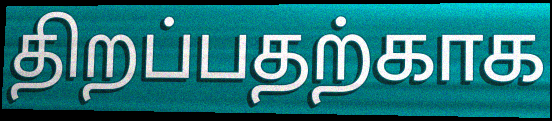
திறப்பதற்காக